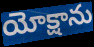
యోక్షాను